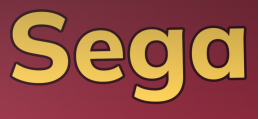
Sega